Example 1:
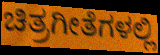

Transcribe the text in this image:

ಚಿತ್ರಗೀತೆಗಳಲ್ಲಿ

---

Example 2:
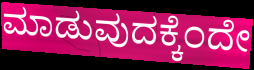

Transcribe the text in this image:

ಮಾಡುವುದಕ್ಕೆಂದೇ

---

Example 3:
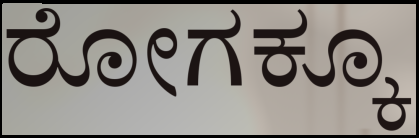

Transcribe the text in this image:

ರೋಗಕ್ಕೂ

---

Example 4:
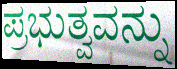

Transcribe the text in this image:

ಪ್ರಭುತ್ವವನ್ನು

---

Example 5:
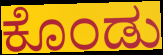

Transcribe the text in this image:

ಕೊಂಡು